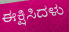
ಈಕ್ಷಿಸಿದಳು